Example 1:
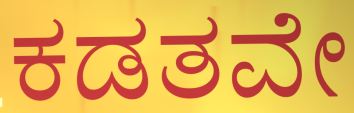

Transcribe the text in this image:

ಕಡತವೇ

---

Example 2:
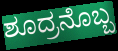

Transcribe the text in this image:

ಶೂದ್ರನೊಬ್ಬ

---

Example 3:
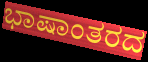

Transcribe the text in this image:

ಭಾಷಾಂತರದ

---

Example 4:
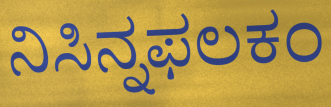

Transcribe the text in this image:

ನಿಸಿನ್ನಫಲಕಂ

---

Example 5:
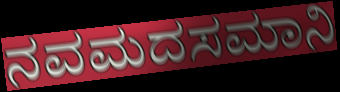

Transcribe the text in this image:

ನವಮದಸಮಾನಿ